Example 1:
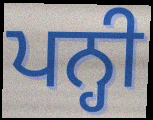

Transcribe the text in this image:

ਪਨ੍ਹੀ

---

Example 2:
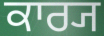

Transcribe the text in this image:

ਕਾਰ੍ਯ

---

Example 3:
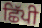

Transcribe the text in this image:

ਛਿੱਪੀ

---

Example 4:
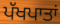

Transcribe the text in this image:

ਪੱਖਪਾਤਾਂ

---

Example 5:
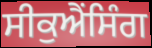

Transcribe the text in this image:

ਸੀਕੁਐਂਸਿੰਗ